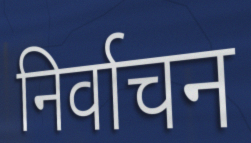
निर्वाचन